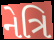
નેત્રિ